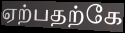
ஏற்பதற்கே